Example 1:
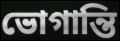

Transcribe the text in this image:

ভোগান্তি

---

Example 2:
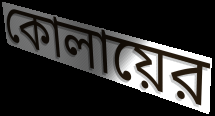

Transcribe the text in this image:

কোলায়ের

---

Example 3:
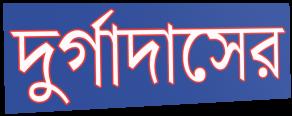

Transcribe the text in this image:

দুর্গাদাসের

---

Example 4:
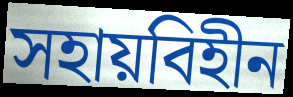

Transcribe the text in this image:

সহায়বিহীন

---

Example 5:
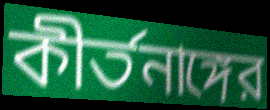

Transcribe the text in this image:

কীর্তনাঙ্গের